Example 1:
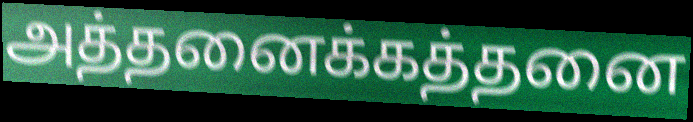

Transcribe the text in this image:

அத்தனைக்கத்தனை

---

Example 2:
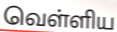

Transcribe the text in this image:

வெள்ளிய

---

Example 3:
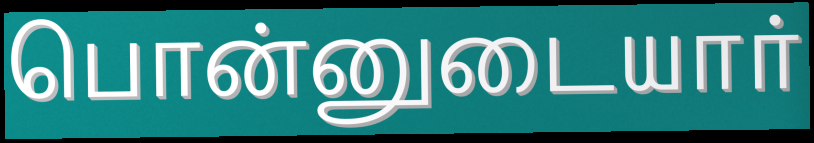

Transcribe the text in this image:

பொன்னுடையார்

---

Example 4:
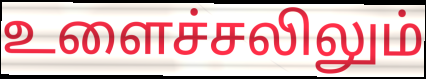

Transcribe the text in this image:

உளைச்சலிலும்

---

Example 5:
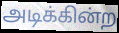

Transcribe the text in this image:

அடிக்கின்ற